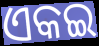
ଏକଇ